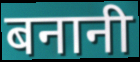
बनानी